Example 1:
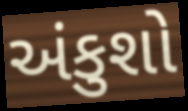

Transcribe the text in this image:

અંકુશો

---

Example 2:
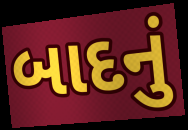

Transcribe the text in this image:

બાદનું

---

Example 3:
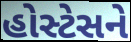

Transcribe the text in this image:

હોસ્ટેસને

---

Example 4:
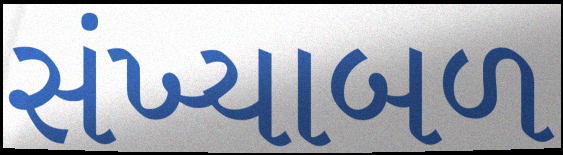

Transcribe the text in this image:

સંખ્યાબળ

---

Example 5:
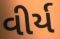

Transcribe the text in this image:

વીર્ય